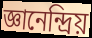
জ্ঞানেন্দ্ৰিয়